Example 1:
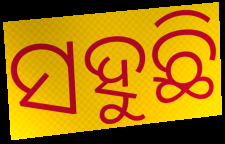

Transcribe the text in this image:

ସହୁଛି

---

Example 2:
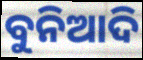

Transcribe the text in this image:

ବୁନିଆଦି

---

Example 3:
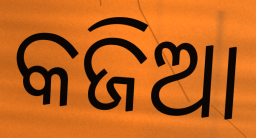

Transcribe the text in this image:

କଜିଆ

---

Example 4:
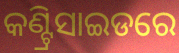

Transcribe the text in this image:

କଣ୍ଟ୍ରିସାଇଡରେ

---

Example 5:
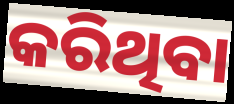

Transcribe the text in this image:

କରିଥିବା